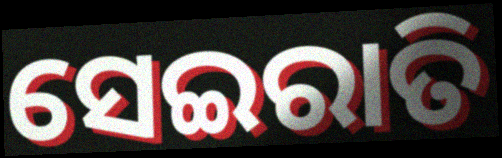
ସେଇରାତି